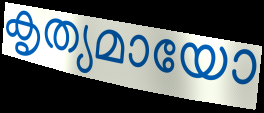
കൃത്യമായോ